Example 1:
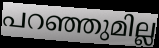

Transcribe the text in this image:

പറഞ്ഞുമില്ല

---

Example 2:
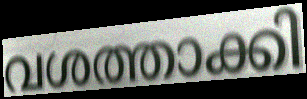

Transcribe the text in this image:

വശത്താക്കി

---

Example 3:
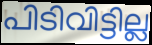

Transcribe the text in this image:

പിടിവിട്ടില്ല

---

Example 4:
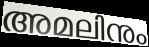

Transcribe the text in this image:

അമലിനും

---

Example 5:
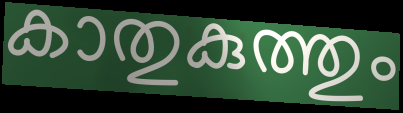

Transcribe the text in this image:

കാതുകുത്തും